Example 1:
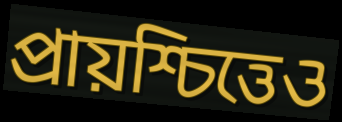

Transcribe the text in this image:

প্রায়শ্চিত্তেও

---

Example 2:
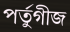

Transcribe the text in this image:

পর্তুগীজ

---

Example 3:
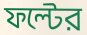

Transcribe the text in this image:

ফল্টের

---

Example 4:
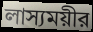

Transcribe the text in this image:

লাস্যময়ীর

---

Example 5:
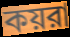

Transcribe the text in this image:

কয়রা